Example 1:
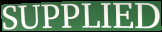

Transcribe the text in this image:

SUPPLIED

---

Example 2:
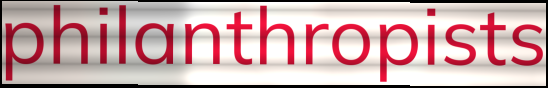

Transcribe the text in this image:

philanthropists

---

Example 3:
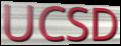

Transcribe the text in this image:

UCSD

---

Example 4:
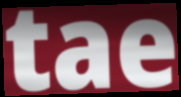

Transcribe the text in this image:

tae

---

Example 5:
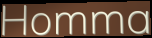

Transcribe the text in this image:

Homma